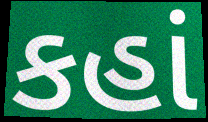
કહાં